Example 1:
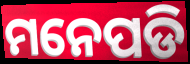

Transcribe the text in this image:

ମନେପଡି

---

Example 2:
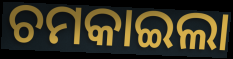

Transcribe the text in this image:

ଚମକାଇଲା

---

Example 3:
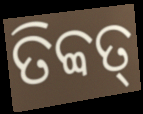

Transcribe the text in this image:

ତିବ୍ବତ୍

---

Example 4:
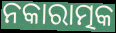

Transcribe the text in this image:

ନକାରାତ୍ମକ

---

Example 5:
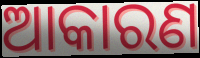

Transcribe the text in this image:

ଆକାରଣ